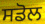
ਸਡੋਲ